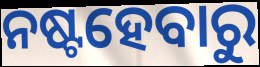
ନଷ୍ଟହେବାରୁ